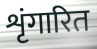
शृंगारित